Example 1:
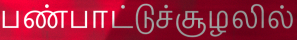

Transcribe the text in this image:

பண்பாட்டுச்சூழலில்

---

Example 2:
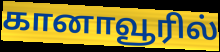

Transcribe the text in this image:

கானாவூரில்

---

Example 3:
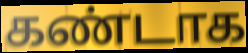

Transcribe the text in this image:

கண்டாக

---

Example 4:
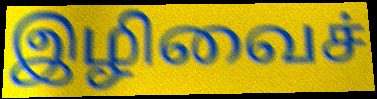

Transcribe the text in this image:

இழிவைச்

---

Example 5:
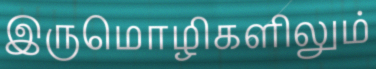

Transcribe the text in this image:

இருமொழிகளிலும்